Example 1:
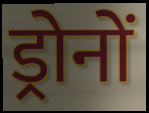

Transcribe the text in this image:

ड्रोनों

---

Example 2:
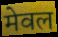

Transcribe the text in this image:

मेवल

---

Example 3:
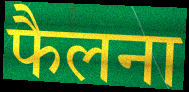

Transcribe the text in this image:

फैलना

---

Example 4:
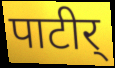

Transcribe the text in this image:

पाटीर्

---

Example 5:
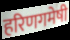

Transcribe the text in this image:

हरिणगमेषी